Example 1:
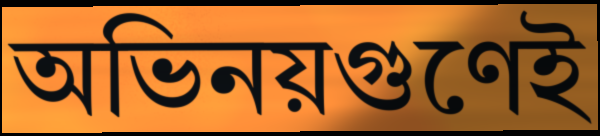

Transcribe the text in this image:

অভিনয়গুণেই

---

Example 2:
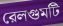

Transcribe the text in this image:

রেলগুমটি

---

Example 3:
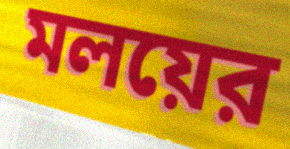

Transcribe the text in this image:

মলয়ের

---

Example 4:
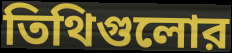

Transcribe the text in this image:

তিথিগুলোর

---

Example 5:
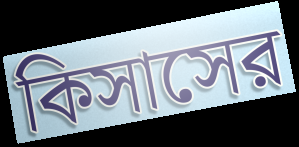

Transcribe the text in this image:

কিসাসের